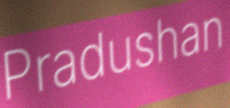
Pradushan